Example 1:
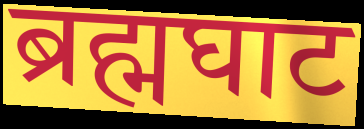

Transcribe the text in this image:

ब्रह्मघाट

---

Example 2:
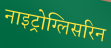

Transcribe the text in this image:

नाइट्रोग्लिसरिन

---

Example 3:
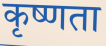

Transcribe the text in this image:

कृष्णता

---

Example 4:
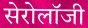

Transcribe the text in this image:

सेरोलॉजी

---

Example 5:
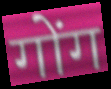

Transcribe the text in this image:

गोंग